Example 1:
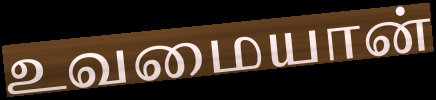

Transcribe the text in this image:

உவமையான்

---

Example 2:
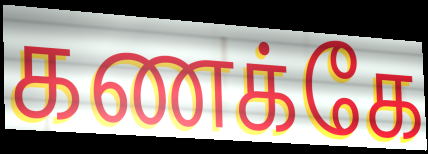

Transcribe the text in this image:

கணக்கே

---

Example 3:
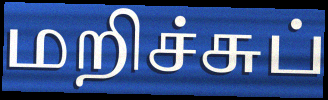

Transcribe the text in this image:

மறிச்சுப்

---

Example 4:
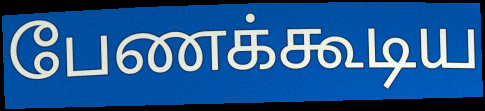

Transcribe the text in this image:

பேணக்கூடிய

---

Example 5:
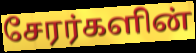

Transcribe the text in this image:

சேரர்களின்